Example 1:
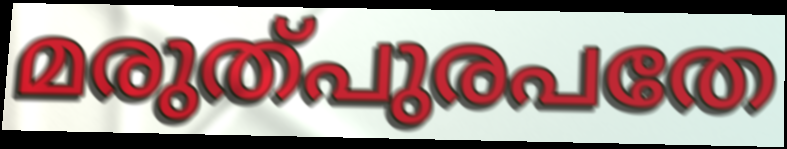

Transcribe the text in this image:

മരുത്പുരപതേ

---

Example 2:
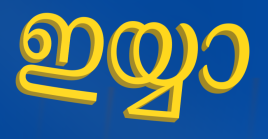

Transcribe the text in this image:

ഇയ്യാ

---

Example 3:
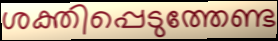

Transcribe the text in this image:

ശക്തിപ്പെടുത്തേണ്ട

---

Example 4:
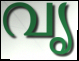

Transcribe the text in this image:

വൃ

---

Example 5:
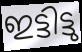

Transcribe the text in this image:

ഇട്ടിട്ടു